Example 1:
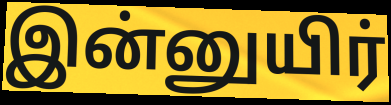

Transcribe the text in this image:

இன்னுயிர்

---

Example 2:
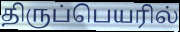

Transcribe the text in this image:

திருப்பெயரில்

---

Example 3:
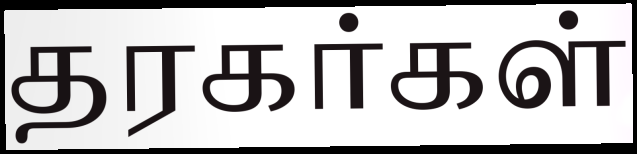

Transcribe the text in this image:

தரகர்கள்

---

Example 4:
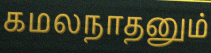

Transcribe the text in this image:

கமலநாதனும்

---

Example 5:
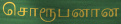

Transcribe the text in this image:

சொரூபனான